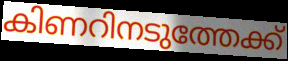
കിണറിനടുത്തേക്ക്